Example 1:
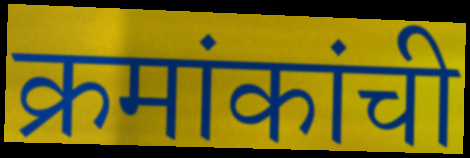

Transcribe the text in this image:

क्रमांकांची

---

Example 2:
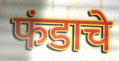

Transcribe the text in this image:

फंडाचे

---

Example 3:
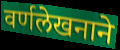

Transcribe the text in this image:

वर्णलेखनाने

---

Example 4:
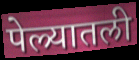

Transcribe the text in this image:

पेल्यातली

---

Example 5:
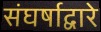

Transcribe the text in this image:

संघर्षाद्वारे